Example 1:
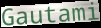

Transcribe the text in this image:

Gautami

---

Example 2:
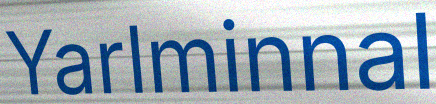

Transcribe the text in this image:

Yarlminnal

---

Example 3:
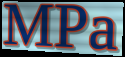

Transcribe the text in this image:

MPa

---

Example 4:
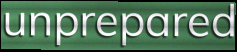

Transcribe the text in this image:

unprepared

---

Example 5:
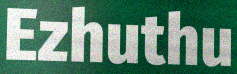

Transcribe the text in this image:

Ezhuthu